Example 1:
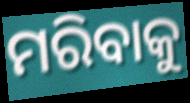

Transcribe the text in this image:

ମରିବାକୁ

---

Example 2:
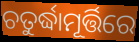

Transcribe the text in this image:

ଚତୁର୍ଦ୍ଧାମୂର୍ତ୍ତିରେ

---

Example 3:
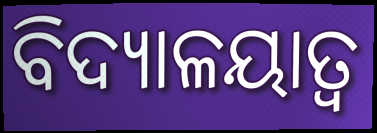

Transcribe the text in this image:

ବିଦ୍ୟାଳୟାତ୍ବ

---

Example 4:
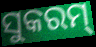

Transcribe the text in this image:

ସୁକରମ୍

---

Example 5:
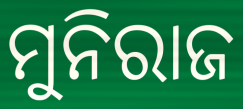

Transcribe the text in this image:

ମୁନିରାଜ